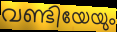
വണ്ടിയേയും